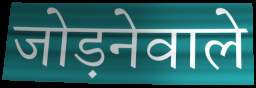
जोड़नेवाले